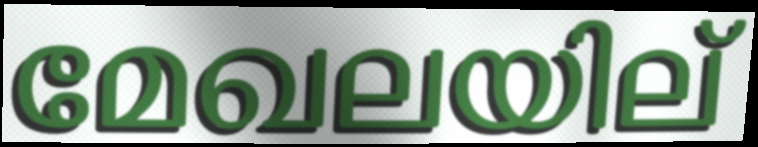
മേഖലയില്